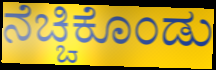
ನೆಚ್ಚಿಕೊಂಡು